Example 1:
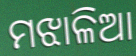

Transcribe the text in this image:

ମଝାଳିଆ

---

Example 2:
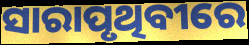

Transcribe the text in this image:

ସାରାପୃଥିବୀରେ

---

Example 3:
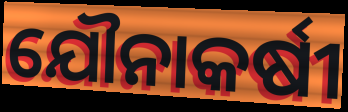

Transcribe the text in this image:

ଯୌନାକର୍ଷୀ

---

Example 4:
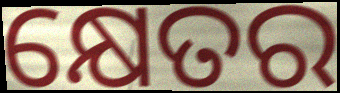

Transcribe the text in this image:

କ୍ଷେତର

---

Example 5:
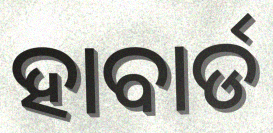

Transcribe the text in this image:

ହାବାର୍ଡ